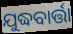
ଯୁଦ୍ଧବାର୍ତ୍ତା